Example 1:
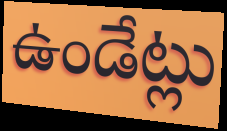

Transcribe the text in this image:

ఉండేట్లు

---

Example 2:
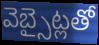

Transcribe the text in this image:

వెబ్సైట్లతో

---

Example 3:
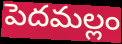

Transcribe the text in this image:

పెదమల్లం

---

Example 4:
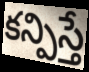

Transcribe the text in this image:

కన్పిస్తే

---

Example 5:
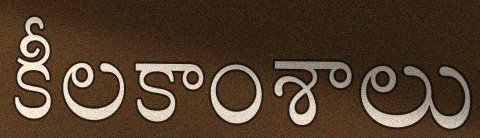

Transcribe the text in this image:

కీలకాంశాలు